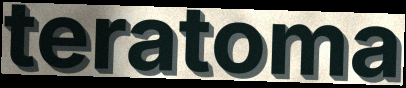
teratoma